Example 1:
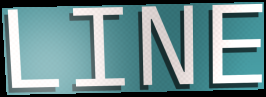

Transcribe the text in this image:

LINE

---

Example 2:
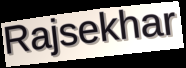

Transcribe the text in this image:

Rajsekhar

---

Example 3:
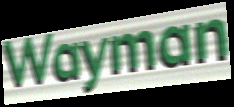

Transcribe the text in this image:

Wayman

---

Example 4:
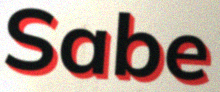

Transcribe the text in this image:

Sabe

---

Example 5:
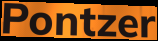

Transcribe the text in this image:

Pontzer